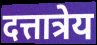
दत्तात्रेय